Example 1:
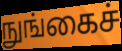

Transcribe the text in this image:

நுங்கைச்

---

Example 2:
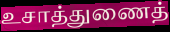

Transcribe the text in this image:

உசாத்துணைத்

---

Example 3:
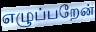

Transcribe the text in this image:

எழுப்பறேன்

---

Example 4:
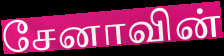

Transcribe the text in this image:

சேனாவின்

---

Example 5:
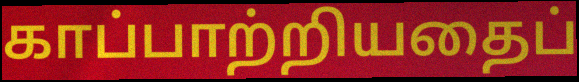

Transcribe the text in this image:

காப்பாற்றியதைப்